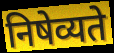
निषेव्यते